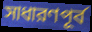
সাধারণপূর্ব